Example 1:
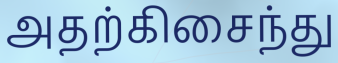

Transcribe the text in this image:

அதற்கிசைந்து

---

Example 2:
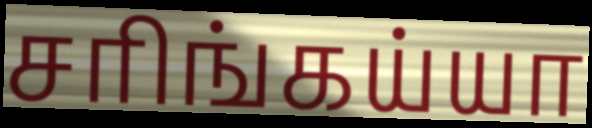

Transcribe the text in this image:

சரிங்கய்யா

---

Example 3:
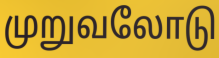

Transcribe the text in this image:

முறுவலோடு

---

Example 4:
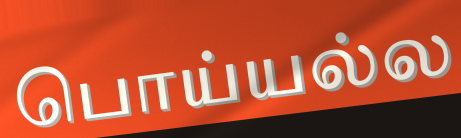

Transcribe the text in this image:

பொய்யல்ல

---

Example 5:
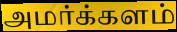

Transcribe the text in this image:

அமர்க்களம்